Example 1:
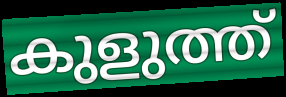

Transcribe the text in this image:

കുളുത്ത്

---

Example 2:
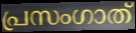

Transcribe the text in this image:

പ്രസംഗാത്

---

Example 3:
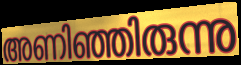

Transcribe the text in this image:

അണിഞ്ഞിരുന്നു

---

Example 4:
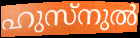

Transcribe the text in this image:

ഹുസ്നുൽ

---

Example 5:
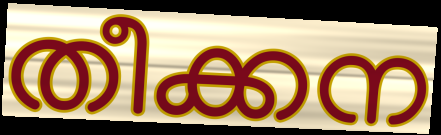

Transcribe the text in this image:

തീക്കന